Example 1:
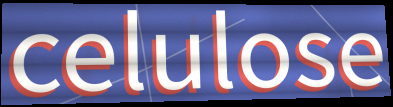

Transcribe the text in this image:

celulose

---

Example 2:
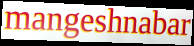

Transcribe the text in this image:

mangeshnabar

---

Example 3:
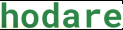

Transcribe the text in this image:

hodare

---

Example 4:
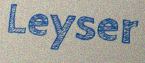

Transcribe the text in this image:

Leyser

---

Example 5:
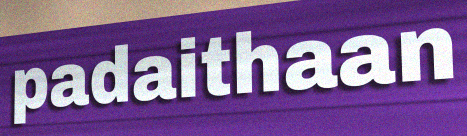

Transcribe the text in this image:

padaithaan